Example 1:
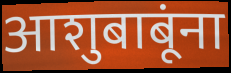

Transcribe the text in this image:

आशुबाबूंना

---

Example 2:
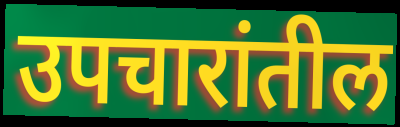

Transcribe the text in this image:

उपचारांतील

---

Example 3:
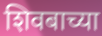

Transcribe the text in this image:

शिवबाच्या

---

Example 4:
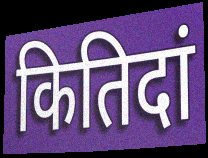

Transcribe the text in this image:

कितिदां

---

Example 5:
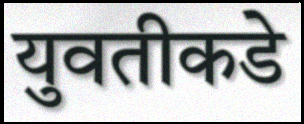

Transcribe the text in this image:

युवतीकडे